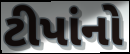
ટીપાંનો